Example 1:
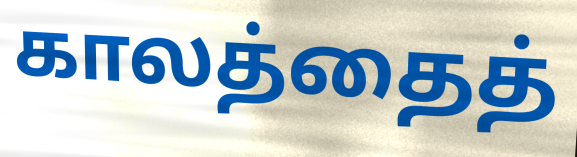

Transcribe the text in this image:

காலத்தைத்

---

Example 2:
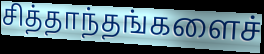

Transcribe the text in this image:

சித்தாந்தங்களைச்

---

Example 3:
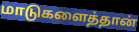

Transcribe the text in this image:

மாடுகளைத்தான்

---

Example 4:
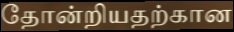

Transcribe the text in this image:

தோன்றியதற்கான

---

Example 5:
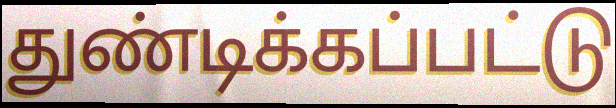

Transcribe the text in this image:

துண்டிக்கப்பட்டு